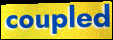
coupled